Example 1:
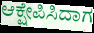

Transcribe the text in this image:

ಆಕ್ಷೇಪಿಸಿದಾಗ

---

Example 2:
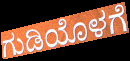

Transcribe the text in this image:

ಗುಡಿಯೊಳಗೆ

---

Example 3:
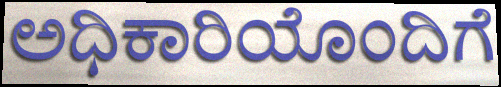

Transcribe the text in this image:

ಅಧಿಕಾರಿಯೊಂದಿಗೆ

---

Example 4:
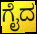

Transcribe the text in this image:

ಗೈದ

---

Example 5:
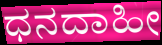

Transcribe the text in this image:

ಧನದಾಹೀ